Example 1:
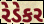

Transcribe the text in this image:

રેડેકર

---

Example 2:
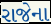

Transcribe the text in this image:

રાજેના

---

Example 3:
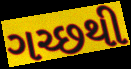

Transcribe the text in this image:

ગચ્છથી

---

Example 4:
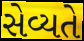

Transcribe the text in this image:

સેવ્યતે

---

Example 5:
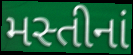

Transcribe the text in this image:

મસ્તીનાં